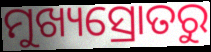
ମୁଖ୍ୟସ୍ରୋତରୁ